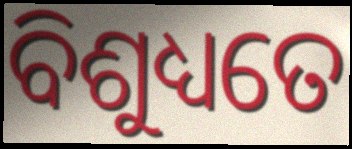
ବିଶୁଧ୍ୟତେ